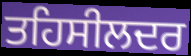
ਤਹਿਸੀਲਦਰ